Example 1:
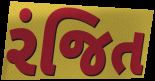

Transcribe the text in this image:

રંજિત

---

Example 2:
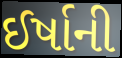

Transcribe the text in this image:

ઈર્ષાની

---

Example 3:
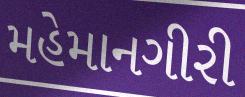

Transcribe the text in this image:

મહેમાનગીરી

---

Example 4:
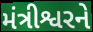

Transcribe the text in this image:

મંત્રીશ્વરને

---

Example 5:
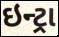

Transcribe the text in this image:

ઇન્ટ્રા